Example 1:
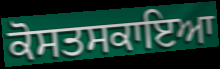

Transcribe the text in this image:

ਕੋਸਤਸਕਾਇਆ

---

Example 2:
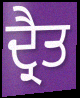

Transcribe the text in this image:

ਦ੍ਰੈਤ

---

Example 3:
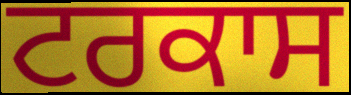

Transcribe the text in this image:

ਟਰਕਾਸ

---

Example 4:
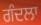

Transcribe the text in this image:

ਗੰਦਲਾ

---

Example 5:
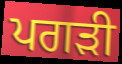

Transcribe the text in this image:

ਪਗੜੀ